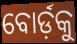
ବୋର୍ଡ଼କୁ